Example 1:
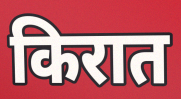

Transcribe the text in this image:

किरात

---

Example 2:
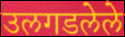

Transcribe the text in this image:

उलगडलेले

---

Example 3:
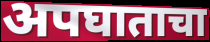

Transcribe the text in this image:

अपघाताचा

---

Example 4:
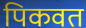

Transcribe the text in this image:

पिकवत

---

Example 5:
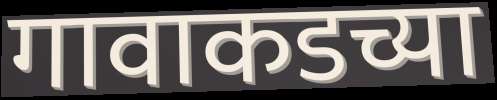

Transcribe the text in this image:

गावाकडच्या